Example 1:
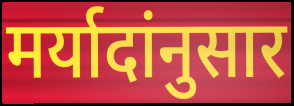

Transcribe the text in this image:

मर्यादांनुसार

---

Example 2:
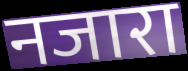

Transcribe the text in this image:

नजारा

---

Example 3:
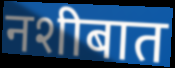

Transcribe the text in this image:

नशीबात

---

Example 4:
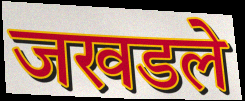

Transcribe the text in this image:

जखडले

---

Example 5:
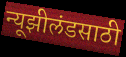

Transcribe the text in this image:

न्यूझीलंडसाठी